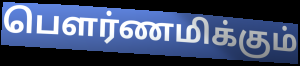
பௌர்ணமிக்கும்